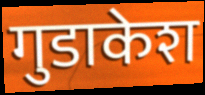
गुडाकेश